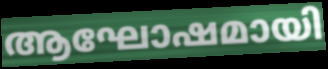
ആഘോഷമായി